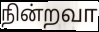
நின்றவா